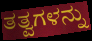
ತತ್ವಗಳನ್ನು